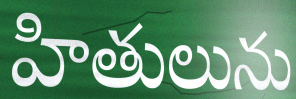
హితులును